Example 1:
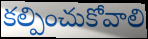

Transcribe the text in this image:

కల్పించుకోవాలి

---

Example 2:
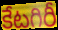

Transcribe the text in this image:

కేటగిరీ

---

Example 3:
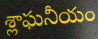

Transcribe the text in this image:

శ్లాఘనీయం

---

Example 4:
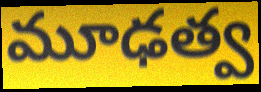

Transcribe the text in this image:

మూఢత్వ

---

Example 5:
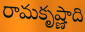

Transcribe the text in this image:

రామకృష్ణాది